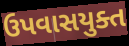
ઉપવાસયુક્ત